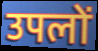
उपलों